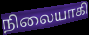
நிலையாகி